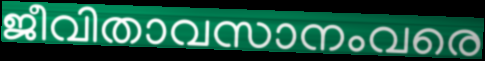
ജീവിതാവസാനംവരെ